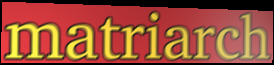
matriarch